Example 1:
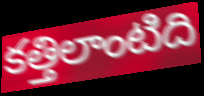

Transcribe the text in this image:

కత్తిలాంటిది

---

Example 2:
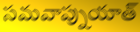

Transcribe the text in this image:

సమవాప్నుయాత్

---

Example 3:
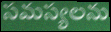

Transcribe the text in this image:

సమస్యలను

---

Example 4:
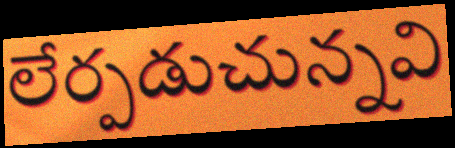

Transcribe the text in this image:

లేర్పడుచున్నవి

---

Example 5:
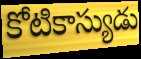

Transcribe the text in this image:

కోటికాస్యుడు